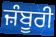
ਜ਼ੰਬੂਰੀ